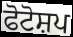
ਫੋਟੋਸ਼ਪ